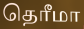
தெரீமா